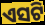
ଏସଟି